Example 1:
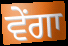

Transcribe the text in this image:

ਵੇਂਗਾ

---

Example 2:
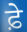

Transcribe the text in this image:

ਫ਼ੇ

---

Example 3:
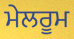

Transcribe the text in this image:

ਮੇਲਰੂਮ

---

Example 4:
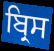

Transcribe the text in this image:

ਬ੍ਰਿਸ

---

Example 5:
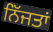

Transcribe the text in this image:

ਨਿੱਜਤਾਂ